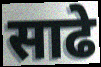
साढे